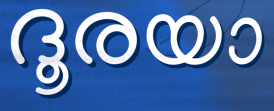
ദൂരയാ